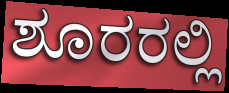
ಶೂರರಲ್ಲಿ